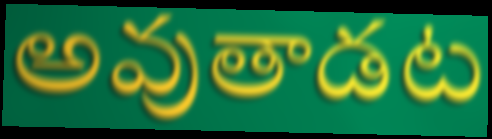
అవుతాడట